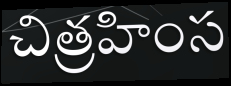
చిత్రహింస